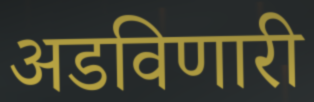
अडविणारी